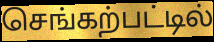
செங்கற்பட்டில்